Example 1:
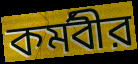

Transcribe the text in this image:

কর্মবীর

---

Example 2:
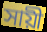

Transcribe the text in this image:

সায়ী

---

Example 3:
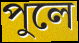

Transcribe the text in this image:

পুলে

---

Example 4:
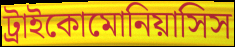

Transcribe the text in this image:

ট্রাইকোমোনিয়াসিস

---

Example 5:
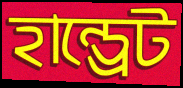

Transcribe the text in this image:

হান্ড্রেট